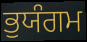
ਭੁਯੰਗਮ